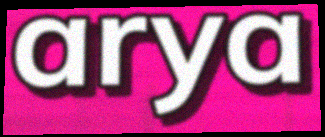
arya